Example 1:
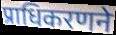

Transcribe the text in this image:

प्राधिकरणने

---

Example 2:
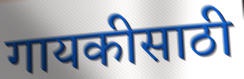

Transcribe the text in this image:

गायकीसाठी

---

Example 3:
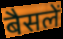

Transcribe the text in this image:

बैसलें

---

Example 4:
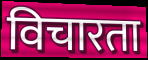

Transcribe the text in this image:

विचारता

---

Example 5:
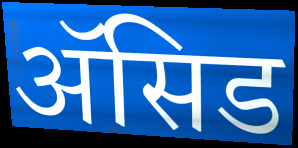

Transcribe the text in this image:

ॲसिड